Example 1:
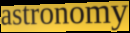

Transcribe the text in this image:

astronomy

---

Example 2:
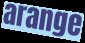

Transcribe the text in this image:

arange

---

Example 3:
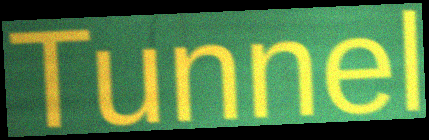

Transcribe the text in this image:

Tunnel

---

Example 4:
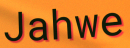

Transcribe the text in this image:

Jahwe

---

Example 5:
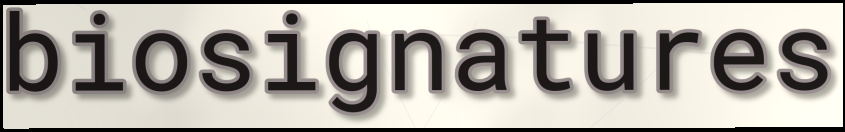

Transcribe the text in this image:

biosignatures